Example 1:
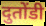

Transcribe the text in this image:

दुतोंडी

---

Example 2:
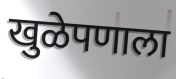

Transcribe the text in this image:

खुळेपणाला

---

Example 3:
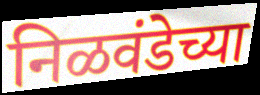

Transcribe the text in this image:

निळवंडेच्या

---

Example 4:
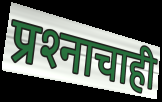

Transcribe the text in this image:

प्रश्नाचाही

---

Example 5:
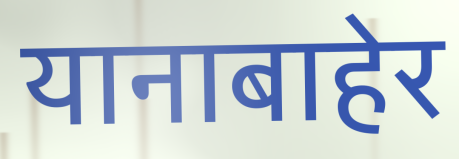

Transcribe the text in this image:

यानाबाहेर